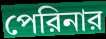
পেরিনার